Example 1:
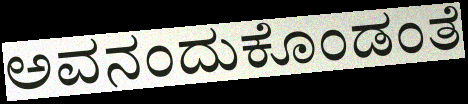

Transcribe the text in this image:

ಅವನಂದುಕೊಂಡಂತೆ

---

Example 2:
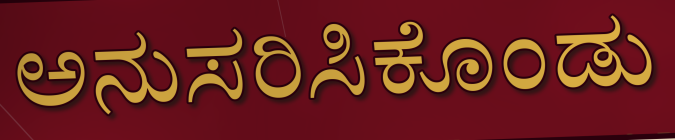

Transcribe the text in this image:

ಅನುಸರಿಸಿಕೊಂಡು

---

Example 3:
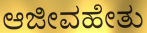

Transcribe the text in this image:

ಆಜೀವಹೇತು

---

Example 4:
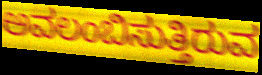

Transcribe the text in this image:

ಅವಲಂಬಿಸುತ್ತಿರುವ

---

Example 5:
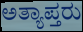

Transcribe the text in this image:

ಅತ್ಯಾಪ್ತರು